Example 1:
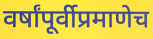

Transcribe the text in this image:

वर्षांपूर्वीप्रमाणेच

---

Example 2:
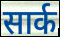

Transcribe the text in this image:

सार्क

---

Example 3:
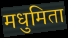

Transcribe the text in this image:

मधुमिता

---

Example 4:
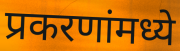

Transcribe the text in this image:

प्रकरणांमध्ये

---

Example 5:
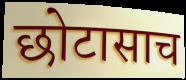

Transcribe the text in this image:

छोटासाच